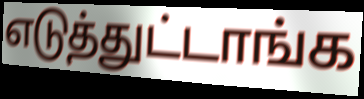
எடுத்துட்டாங்க